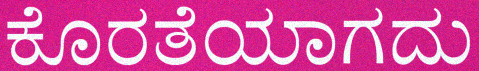
ಕೊರತೆಯಾಗದು